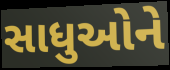
સાધુઓને